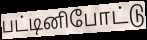
பட்டினிபோட்டு